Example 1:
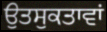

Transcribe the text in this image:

ਉਤਸੁਕਤਾਵਾਂ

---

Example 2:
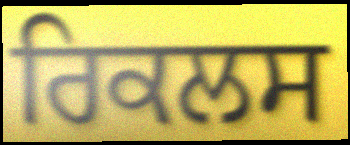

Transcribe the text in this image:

ਰਿਕਲਸ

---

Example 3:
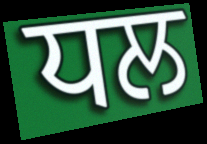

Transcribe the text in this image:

ਧਲ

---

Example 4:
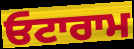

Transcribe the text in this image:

ਓਟਾਰਾਮ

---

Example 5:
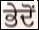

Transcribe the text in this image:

ਭੇਦੋਂ